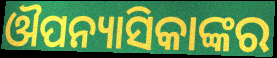
ଔପନ୍ୟାସିକାଙ୍କର